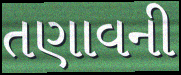
તણાવની